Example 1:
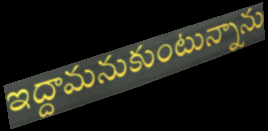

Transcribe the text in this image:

ఇద్దామనుకుంటున్నాను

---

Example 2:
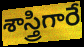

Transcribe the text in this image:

శాస్త్రిగారే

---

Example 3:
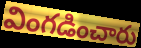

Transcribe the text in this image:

వింగడించారు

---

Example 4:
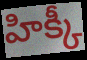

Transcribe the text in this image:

హిక్కీ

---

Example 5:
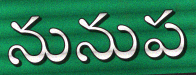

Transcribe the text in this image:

నునుప